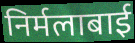
निर्मलाबाई